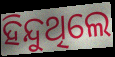
ହିନ୍ଦୁଥିଲେ